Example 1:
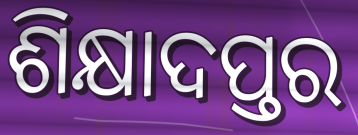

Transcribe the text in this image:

ଶିକ୍ଷାଦପ୍ତର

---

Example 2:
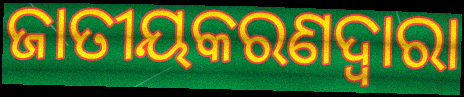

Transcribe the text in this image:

ଜାତୀୟକରଣଦ୍ୱାରା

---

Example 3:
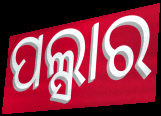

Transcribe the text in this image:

ପଲ୍ସାର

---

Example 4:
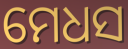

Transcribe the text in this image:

ମେଧସ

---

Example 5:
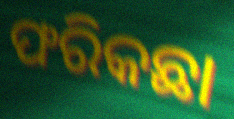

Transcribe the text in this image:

ଫରିକଛା